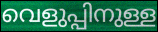
വെളുപ്പിനുള്ള